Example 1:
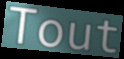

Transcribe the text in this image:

Tout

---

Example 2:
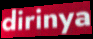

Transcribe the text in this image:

dirinya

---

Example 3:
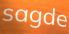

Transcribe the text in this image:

sagde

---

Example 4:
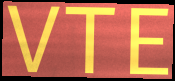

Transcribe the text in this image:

VTE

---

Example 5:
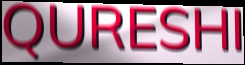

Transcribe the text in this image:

QURESHI